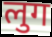
लुग